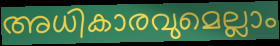
അധികാരവുമെല്ലാം